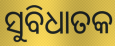
ସୁବିଧାତକ